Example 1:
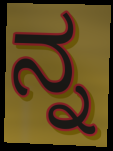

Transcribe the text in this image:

ನ್ನ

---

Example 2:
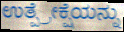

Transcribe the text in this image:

ಉತ್ಪ್ರೇಕ್ಷೆಯನ್ನು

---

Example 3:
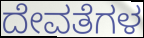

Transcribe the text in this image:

ದೇವತೆಗಳ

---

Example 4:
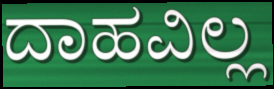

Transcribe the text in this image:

ದಾಹವಿಲ್ಲ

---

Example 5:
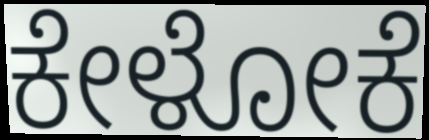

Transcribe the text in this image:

ಕೇಳೋಕೆ